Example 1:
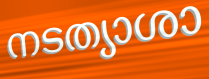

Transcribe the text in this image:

നടത്യാശാ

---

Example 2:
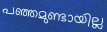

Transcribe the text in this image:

പഞ്ഞമുണ്ടായില്ല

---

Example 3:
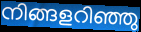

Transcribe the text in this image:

നിങ്ങളറിഞ്ഞു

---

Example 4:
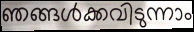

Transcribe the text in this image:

ഞങ്ങൾക്കവിടുന്നാം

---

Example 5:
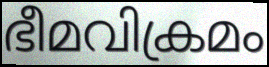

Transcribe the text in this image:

ഭീമവിക്രമം